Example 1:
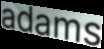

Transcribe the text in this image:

adams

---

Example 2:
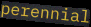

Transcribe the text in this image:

perennial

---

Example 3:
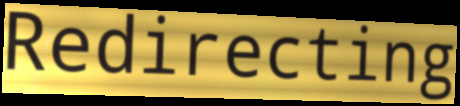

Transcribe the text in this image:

Redirecting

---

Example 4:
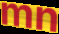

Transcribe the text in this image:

mn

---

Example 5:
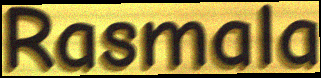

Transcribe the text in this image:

Rasmala